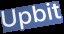
Upbit